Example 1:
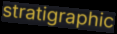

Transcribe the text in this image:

stratigraphic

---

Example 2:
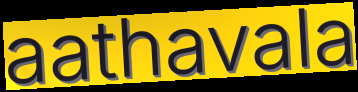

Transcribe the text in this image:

aathavala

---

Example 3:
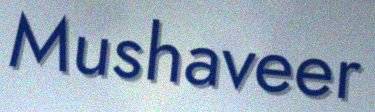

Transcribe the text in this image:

Mushaveer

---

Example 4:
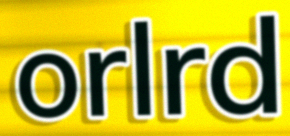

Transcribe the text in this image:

orlrd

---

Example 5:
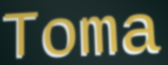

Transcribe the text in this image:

Toma